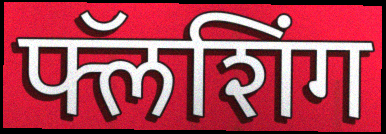
फ्लॅशिंग